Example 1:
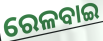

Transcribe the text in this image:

ରେଳବାଇ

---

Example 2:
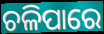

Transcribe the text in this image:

ଚଳିପାରେ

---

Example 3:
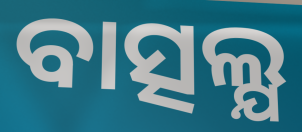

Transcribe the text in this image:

ବାତ୍ସଲ୍ଯ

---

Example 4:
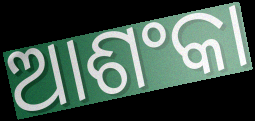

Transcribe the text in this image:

ଆଶଂକା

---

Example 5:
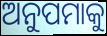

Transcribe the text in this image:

ଅନୁପମାକୁ